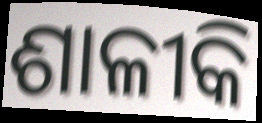
ଶାଳୀକି